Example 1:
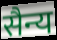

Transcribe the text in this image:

सैन्‍य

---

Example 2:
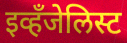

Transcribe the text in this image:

इव्हँजेलिस्ट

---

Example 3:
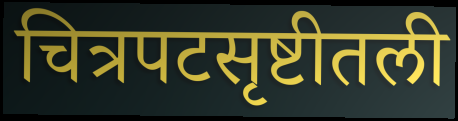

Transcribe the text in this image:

चित्रपटसृष्टीतली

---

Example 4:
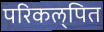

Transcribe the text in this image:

परिकल्पित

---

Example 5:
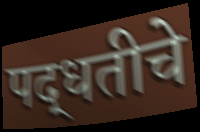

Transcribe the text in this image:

पद्धतीचे